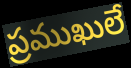
ప్రముఖులే